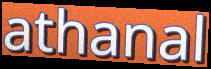
athanal